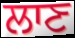
ਲਾਣ